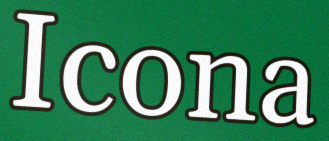
Icona